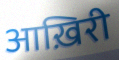
आख़िरी